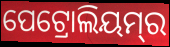
ପେଟ୍ରୋଲିୟମ୍‌ର